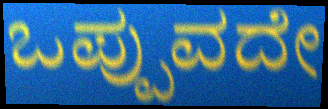
ಒಪ್ಪುವದೇ